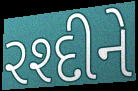
રશ્દીને